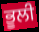
ਭੂਲੀ